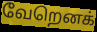
வேறெனக்